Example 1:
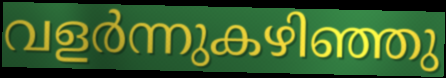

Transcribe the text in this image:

വളർന്നുകഴിഞ്ഞു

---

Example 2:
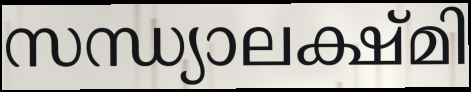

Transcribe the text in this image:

സന്ധ്യാലക്ഷ്മി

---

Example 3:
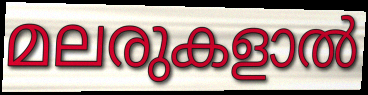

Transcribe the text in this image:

മലരുകളാൽ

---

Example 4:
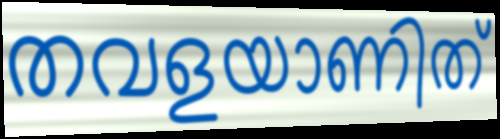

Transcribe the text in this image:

തവളയാണിത്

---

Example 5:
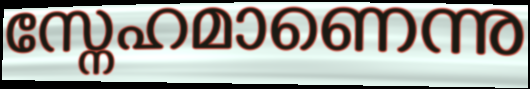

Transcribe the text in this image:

സ്നേഹമാണെന്നു